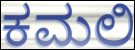
ಕಮಲಿ